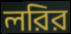
লরির